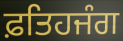
ਫ਼ਤਿਹਜੰਗ